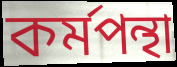
কৰ্মপন্থা